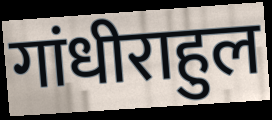
गांधीराहुल